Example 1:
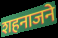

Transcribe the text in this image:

शहनाजने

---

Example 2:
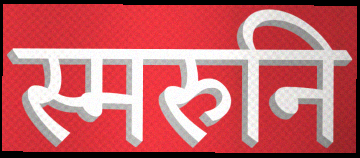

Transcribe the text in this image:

स्मरुनि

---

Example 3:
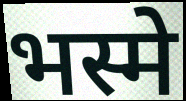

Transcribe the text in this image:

भस्मे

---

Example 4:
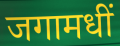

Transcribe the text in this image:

जगामधीं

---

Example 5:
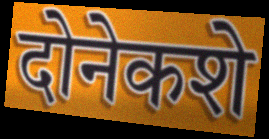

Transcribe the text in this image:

दोनेकशे